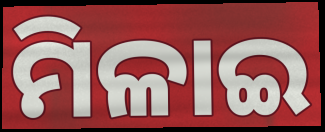
ମିଳାଇ